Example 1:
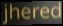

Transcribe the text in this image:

jhered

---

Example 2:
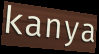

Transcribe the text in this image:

kanya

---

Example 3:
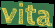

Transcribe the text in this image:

vita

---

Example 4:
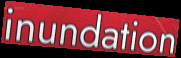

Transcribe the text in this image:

inundation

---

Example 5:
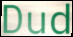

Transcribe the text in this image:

Dud